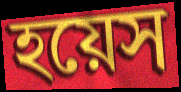
হয়েস